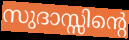
സുദാസ്സിന്റെ